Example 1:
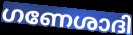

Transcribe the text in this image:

ഗണേശാദി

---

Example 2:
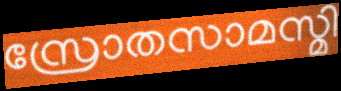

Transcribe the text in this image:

സ്രോതസാമസ്മി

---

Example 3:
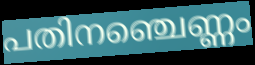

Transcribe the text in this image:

പതിനഞ്ചെണ്ണം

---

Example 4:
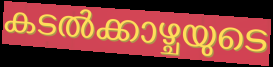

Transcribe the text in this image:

കടൽക്കാഴ്ചയുടെ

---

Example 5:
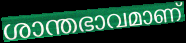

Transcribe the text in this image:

ശാന്തഭാവമാണ്